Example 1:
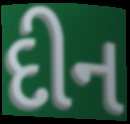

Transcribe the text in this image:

દીન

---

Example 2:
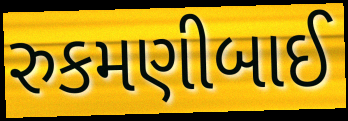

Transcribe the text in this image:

રુકમણીબાઈ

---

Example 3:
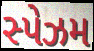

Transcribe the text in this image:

સ્પેઝમ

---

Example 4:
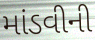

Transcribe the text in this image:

માંડવીની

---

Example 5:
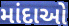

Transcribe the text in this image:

માંદાઓ